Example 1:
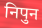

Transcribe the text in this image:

निपुन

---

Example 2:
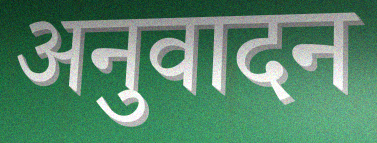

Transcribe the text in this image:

अनुवादन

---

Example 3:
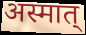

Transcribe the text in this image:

अस्मात्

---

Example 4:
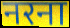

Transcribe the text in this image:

नरना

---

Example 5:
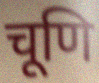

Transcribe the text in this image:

चूणि